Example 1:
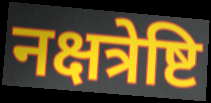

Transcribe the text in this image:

नक्षत्रेष्टि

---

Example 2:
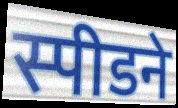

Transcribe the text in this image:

स्पीडने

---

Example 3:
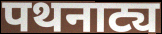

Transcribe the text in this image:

पथनाट्य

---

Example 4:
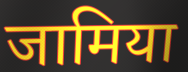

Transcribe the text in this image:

जामिया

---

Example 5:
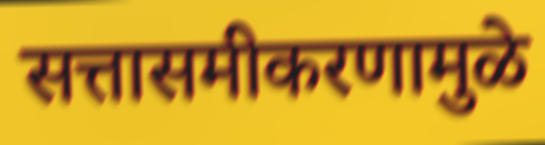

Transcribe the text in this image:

सत्तासमीकरणामुळे